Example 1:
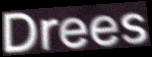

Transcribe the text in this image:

Drees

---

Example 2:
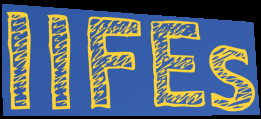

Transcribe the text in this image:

IIFEs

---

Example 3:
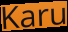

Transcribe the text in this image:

Karu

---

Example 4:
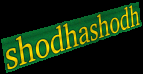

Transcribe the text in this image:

shodhashodh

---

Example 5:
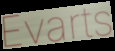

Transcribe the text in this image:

Evarts